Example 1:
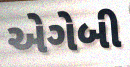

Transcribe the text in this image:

એગેબી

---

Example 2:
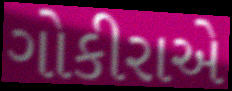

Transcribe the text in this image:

ગોકીરાએ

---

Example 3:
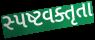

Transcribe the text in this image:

સ્પષ્ટવક્તૃતા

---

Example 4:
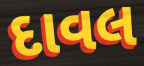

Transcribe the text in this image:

દાવલ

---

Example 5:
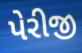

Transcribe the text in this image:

પેરીજી